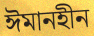
ঈমানহীন